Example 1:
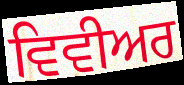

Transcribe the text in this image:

ਵਿਵੀਅਰ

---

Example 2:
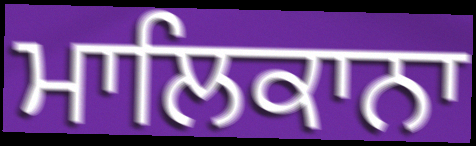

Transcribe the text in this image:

ਮਾਲਿਕਾਨਾ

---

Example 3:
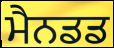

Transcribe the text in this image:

ਮੈਨਡਡ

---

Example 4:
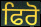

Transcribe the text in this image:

ਫਿਰੋ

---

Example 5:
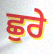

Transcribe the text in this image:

ਛੁਰੇ